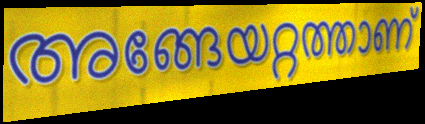
അങ്ങേയറ്റത്താണ്